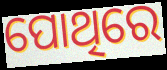
ପୋଥିରେ